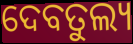
ଦେବତୁଲ୍ୟ